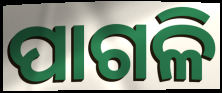
ପାଗଳି